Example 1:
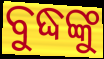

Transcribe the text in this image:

ବୁଦ୍ଧଙ୍କୁ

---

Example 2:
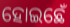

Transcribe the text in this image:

ହୋଇଛେଁ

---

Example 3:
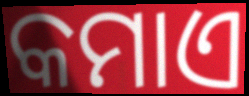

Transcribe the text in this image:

କମାଏ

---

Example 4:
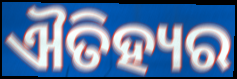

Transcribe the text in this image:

ଐତିହ୍ୟର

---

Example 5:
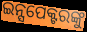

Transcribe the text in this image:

ଇନ୍ସପେକ୍ଟରଙ୍କୁ